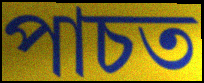
পাচত